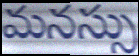
మనస్సు